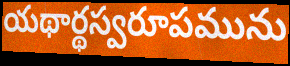
యథార్థస్వరూపమును